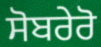
ਸੋਬਰੇਰੋ